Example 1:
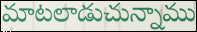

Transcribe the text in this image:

మాటలాడుచున్నాము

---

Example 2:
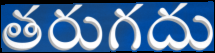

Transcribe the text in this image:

తరుగదు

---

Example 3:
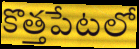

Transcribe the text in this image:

కొత్తపేటలో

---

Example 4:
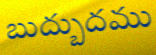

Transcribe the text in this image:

బుద్బుదము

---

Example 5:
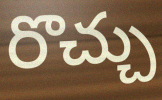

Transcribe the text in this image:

రొచ్చు